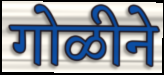
गोळीने